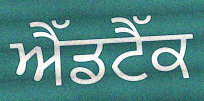
ਐੱਡਟੈੱਕ